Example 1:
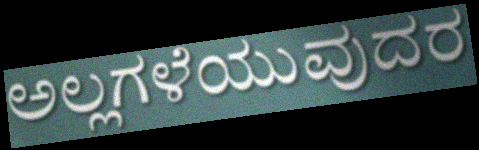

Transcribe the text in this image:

ಅಲ್ಲಗಳೆಯುವುದರ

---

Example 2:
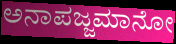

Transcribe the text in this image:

ಅನಾಪಜ್ಜಮಾನೋ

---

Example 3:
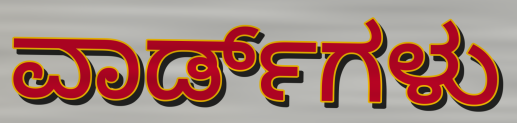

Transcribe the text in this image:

ವಾರ್ಡ್‌ಗಳು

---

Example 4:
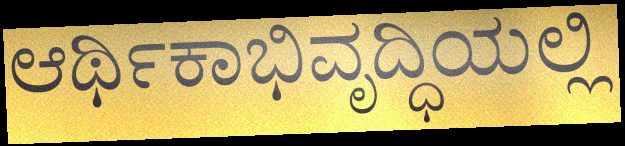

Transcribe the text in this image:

ಆರ್ಥಿಕಾಭಿವೃದ್ಧಿಯಲ್ಲಿ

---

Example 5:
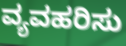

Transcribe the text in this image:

ವ್ಯವಹರಿಸು